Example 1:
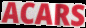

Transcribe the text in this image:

ACARS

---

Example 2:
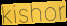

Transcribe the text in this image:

kishor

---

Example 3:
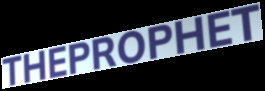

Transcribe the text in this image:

THEPROPHET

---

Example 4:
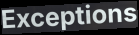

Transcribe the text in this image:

Exceptions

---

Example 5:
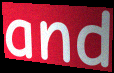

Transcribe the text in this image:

and